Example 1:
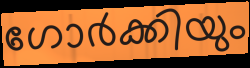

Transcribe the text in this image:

ഗോർക്കിയും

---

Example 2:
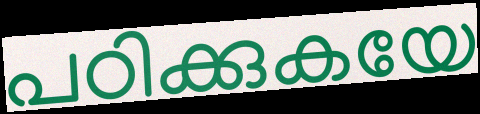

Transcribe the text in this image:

പഠിക്കുകയേ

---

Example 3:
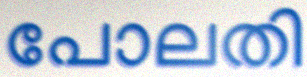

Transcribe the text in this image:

പോലതി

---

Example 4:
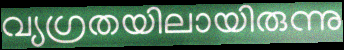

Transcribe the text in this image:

വ്യഗ്രതയിലായിരുന്നു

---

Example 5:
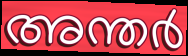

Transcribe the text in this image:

അന്തർ